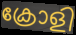
ക്രോളി